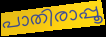
പാതിരാപ്പൂ